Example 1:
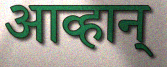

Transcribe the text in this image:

आव्हान्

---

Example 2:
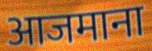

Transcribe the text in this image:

आजमाना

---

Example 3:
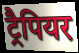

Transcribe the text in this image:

ट्रैपियर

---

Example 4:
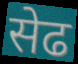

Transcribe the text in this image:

सेढ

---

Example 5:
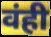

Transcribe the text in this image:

वंही